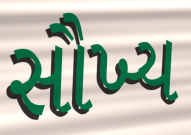
સૌખ્ય